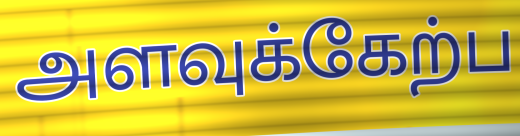
அளவுக்கேற்ப